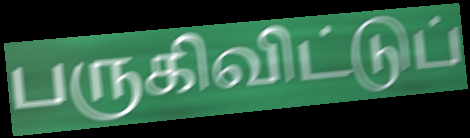
பருகிவிட்டுப்